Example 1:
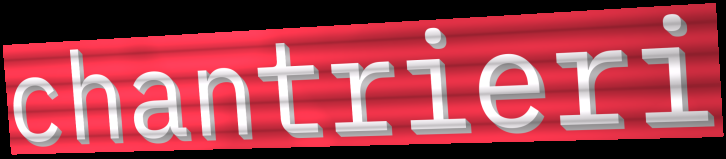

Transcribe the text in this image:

chantrieri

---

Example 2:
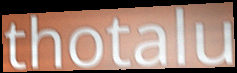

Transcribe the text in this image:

thotalu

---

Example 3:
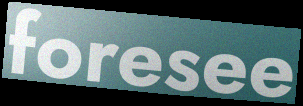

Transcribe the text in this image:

foresee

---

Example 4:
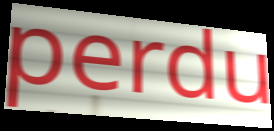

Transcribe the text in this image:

perdu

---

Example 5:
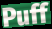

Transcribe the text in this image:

Puff